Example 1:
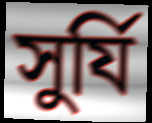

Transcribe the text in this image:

সুর্যি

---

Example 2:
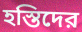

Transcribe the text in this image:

হস্তিদের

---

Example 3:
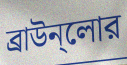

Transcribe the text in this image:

ব্রাউন্লোর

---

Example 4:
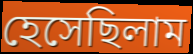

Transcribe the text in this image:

হেসেছিলাম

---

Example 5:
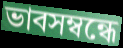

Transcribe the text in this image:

ভাবসম্বন্ধে